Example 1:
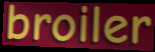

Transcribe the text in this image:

broiler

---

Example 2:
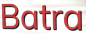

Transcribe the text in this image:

Batra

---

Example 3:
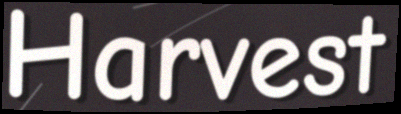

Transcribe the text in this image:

Harvest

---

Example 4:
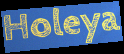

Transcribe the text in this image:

Holeya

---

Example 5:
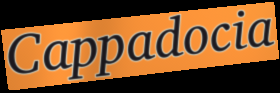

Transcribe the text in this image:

Cappadocia